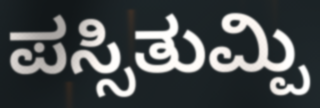
ಪಸ್ಸಿತುಮ್ಪಿ